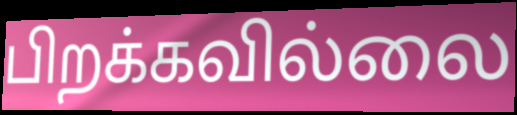
பிறக்கவில்லை